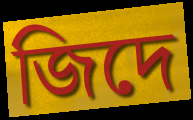
জিদে